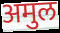
अमुल